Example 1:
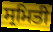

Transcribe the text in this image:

ਸ੍ਰਮਿਤੀ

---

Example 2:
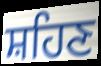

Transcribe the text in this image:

ਸ਼ਹਿਣ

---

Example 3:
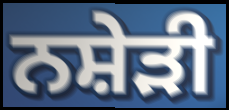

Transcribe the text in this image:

ਨਸ਼ੇੜੀ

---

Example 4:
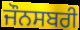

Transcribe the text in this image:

ਜੌਨਸਬਰੀ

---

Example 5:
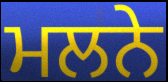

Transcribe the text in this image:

ਮਲਨੇ